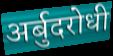
अर्बुदरोधी